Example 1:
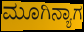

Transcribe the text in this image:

ಮೂಗಿನ್ಯಾಗ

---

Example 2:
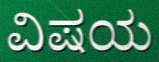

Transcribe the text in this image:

ವಿಷಯ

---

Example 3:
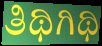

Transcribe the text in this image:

ತಿಥಿಗಿಥಿ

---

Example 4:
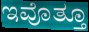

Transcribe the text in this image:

ಇವೊತ್ತೂ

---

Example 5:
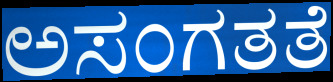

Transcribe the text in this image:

ಅಸಂಗತತೆ